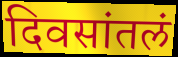
दिवसांतलं